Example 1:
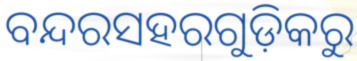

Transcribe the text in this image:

ବନ୍ଦରସହରଗୁଡ଼ିକରୁ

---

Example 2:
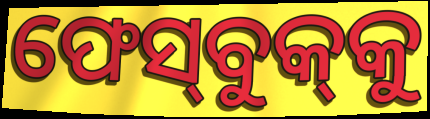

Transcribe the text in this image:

ଫେସ୍‌ବୁକ୍‌କୁ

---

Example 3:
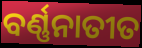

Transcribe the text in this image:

ବର୍ଣ୍ଣନାତୀତ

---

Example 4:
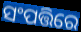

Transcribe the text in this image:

ସଂପତ୍ତିରେ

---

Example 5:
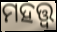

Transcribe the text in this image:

ମହତ୍ତ୍ବ